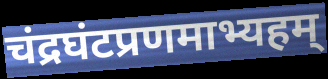
चंद्रघंटप्रणमाभ्यहम्